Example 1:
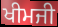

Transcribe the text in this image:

ਖੀਮਜੀ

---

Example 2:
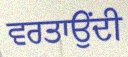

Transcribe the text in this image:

ਵਰਤਾਉਂਦੀ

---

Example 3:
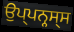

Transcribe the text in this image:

ਉਪ੍ਪਨ੍ਨਸ੍ਸ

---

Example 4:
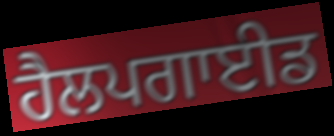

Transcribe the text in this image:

ਹੈਲਪਗਾਈਡ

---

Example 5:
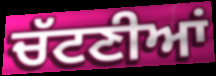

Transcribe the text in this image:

ਚੱਟਣੀਆਂ